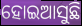
ହୋଇଆସୁଛି